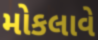
મોકલાવે